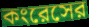
কংরেসের